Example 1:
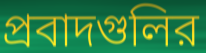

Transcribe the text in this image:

প্রবাদগুলির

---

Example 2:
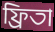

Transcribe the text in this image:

ফ্রিতা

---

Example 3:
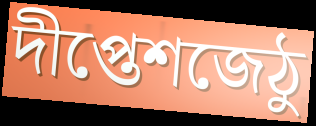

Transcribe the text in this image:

দীপ্তেশজেঠু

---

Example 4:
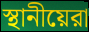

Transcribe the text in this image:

স্থানীয়েরা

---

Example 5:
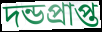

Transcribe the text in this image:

দন্ডপ্রাপ্ত